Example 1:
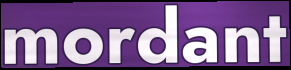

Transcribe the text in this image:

mordant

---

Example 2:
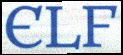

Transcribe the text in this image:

ELF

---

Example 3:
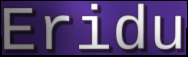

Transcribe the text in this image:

Eridu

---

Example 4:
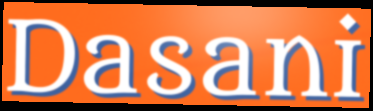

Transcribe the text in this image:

Dasani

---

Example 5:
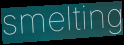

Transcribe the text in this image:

smelting